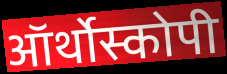
ऑर्थोस्कोपी